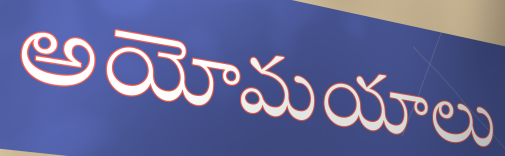
అయోమయాలు